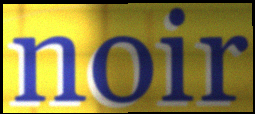
noir